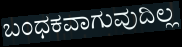
ಬಂಧಕವಾಗುವುದಿಲ್ಲ